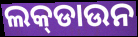
ଲକ୍‍ଡାଉନ